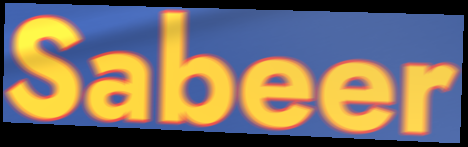
Sabeer